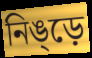
নিঙ্ড়ে